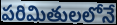
పరిమితులలోనే